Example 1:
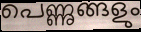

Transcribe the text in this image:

പെണ്ണുങ്ങളും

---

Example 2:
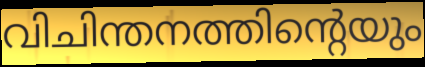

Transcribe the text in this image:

വിചിന്തനത്തിന്റെയും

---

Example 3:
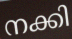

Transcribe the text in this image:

നക്കി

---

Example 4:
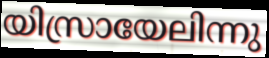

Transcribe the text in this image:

യിസ്രായേലിന്നു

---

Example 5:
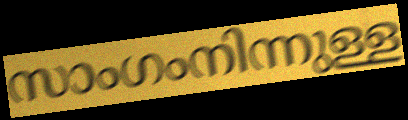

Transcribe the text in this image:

സാംഗംനിന്നുള്ള